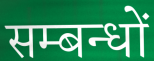
सम्बन्धों